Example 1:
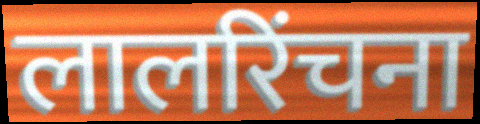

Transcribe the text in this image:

लालरिंचना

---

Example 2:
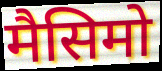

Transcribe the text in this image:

मैसिमो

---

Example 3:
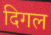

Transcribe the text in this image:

दिगल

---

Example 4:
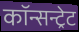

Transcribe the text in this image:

कॉन्सन्ट्रेट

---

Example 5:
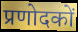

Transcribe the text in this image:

प्रणोदकों